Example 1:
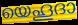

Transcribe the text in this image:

യെഹൂദാ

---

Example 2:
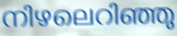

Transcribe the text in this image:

നിഴലെറിഞ്ഞു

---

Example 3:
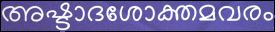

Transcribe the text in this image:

അഷ്ടാദശോക്തമവരം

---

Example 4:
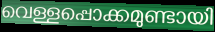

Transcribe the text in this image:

വെള്ളപ്പൊക്കമുണ്ടായി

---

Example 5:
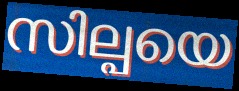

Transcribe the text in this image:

സില്പയെ